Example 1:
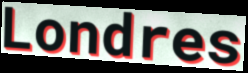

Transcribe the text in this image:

Londres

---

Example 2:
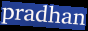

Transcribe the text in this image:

pradhan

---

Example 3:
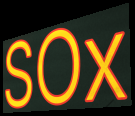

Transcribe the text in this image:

SOx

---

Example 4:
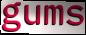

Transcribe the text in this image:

gums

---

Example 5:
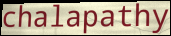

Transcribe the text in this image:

chalapathy